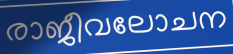
രാജീവലോചന